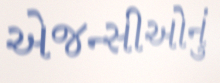
એજન્સીઓનું